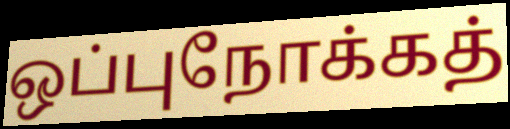
ஒப்புநோக்கத்